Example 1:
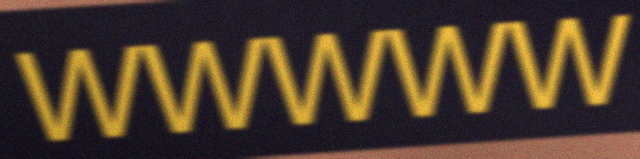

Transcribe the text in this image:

wwwww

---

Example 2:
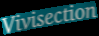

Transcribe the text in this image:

Vivisection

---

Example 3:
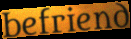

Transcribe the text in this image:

befriend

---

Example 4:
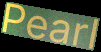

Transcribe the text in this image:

Pearl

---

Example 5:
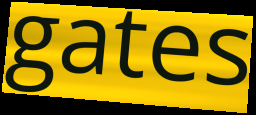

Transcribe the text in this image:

gates